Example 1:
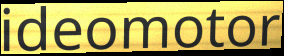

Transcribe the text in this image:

ideomotor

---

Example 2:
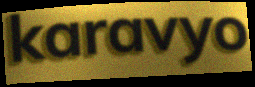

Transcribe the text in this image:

karavyo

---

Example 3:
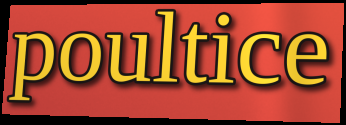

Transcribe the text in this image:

poultice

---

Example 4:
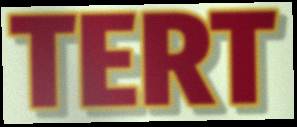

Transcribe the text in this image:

TERT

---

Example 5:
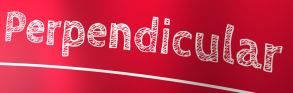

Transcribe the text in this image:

Perpendicular